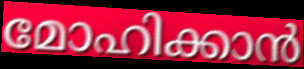
മോഹിക്കാൻ